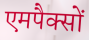
एमपैक्सों